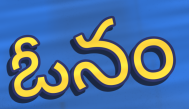
ఓనం